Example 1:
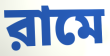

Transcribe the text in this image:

রামে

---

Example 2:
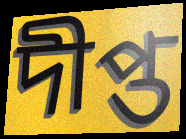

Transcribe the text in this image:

দীপ্ত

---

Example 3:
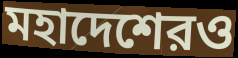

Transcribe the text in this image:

মহাদেশেরও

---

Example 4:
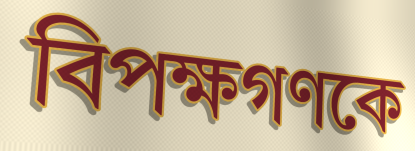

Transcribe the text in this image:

বিপক্ষগণকে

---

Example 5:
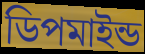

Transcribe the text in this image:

ডিপমাইন্ড